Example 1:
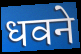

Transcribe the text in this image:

धवने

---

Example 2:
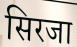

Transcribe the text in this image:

सिरजा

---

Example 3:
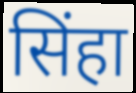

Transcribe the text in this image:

सिंहा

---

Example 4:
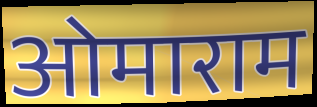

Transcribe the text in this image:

ओमाराम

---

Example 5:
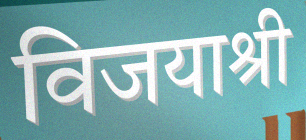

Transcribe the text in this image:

विजयाश्री